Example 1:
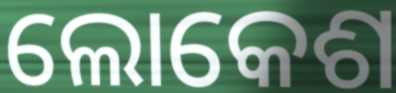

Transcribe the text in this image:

ଲୋକେଶ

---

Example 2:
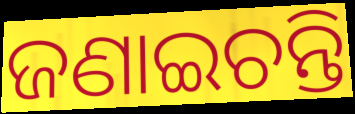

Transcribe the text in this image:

ଜଣାଇଚନ୍ତି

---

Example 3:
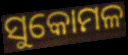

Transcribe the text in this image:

ସୁକୋମଳ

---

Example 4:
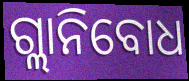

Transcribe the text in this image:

ଗ୍ଲାନିବୋଧ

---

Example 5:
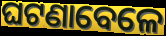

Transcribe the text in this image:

ଘଟଣାବେଳେ